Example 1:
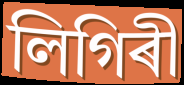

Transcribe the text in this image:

লিগিৰী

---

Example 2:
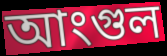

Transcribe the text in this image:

আংগুল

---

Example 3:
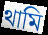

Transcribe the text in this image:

থামি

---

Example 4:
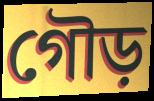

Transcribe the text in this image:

গৌড়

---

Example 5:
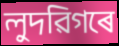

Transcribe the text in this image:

লুদৱিগৰে